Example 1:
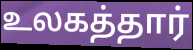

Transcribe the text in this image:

உலகத்தார்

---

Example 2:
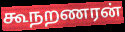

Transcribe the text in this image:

கூநறணரன்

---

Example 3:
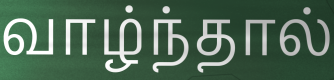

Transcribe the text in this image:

வாழ்ந்தால்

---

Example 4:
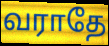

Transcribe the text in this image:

வராதே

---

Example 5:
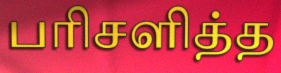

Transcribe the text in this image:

பரிசளித்த